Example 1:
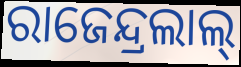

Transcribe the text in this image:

ରାଜେନ୍ଦ୍ରଲାଲ୍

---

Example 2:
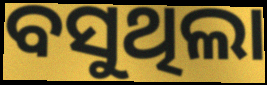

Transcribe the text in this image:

ବସୁଥିଲା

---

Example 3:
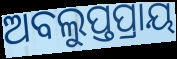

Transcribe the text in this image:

ଅବଲୁପ୍ତପ୍ରାୟ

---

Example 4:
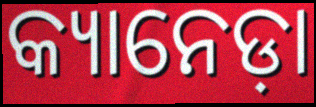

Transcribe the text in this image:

କ୍ୟାନେଡ଼ା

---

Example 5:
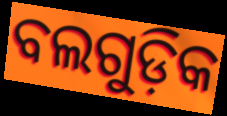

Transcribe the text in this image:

ବଲଗୁଡ଼ିକ